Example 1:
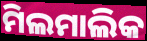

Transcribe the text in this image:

ମିଲମାଲିକ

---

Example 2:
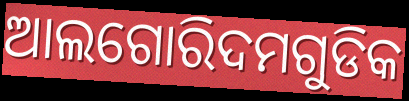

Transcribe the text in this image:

ଆଲଗୋରିଦମଗୁଡିକ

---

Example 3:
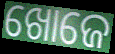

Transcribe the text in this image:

ଖୋଜେ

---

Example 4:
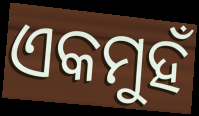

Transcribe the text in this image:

ଏକମୁହଁ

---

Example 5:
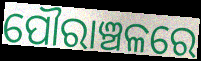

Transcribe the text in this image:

ପୌରାଞ୍ଚଳରେ